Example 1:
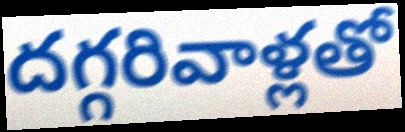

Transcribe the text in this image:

దగ్గరివాళ్లతో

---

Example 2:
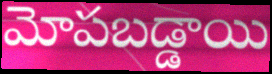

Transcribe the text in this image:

మోపబడ్డాయి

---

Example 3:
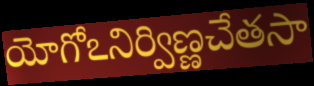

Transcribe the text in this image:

యోగోఽనిర్విణ్ణచేతసా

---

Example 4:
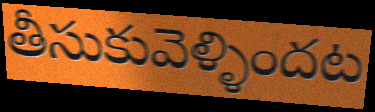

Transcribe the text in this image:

తీసుకువెళ్ళిందట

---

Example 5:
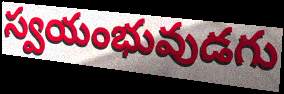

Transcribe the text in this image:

స్వయంభువుడగు